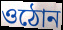
ওঠোন